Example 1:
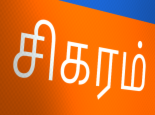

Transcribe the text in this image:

சிகரம்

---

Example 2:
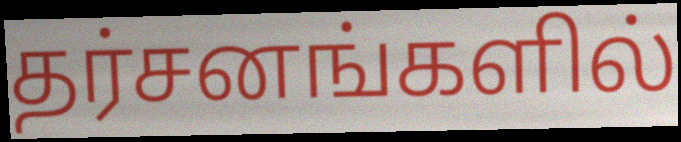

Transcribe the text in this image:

தர்சனங்களில்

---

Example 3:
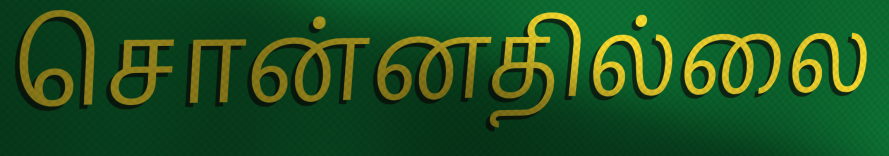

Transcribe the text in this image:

சொன்னதில்லை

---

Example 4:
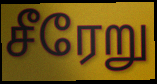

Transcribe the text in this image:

சீரேறு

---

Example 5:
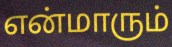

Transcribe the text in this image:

என்மாரும்